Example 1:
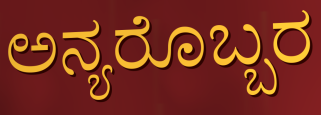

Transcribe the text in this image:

ಅನ್ಯರೊಬ್ಬರ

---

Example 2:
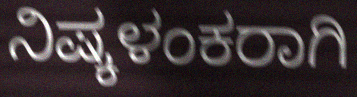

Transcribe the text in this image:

ನಿಷ್ಕಳಂಕರಾಗಿ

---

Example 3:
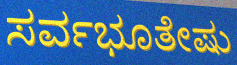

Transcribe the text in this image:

ಸರ್ವಭೂತೇಷು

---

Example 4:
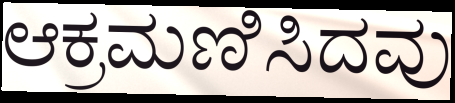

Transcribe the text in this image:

ಆಕ್ರಮಣಿಸಿದವು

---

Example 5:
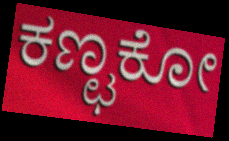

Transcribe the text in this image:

ಕಣ್ಟಕೋ